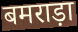
बमराड़ा